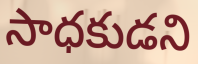
సాధకుడని